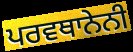
ਪਰਵਥਾਨੇਨੀ